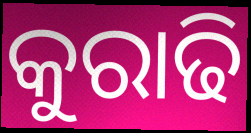
କୁରାଢି